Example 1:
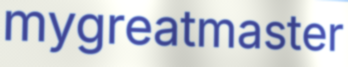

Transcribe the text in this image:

mygreatmaster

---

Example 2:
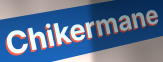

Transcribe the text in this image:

Chikermane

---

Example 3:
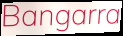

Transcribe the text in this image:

Bangarra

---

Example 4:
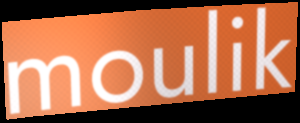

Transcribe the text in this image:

moulik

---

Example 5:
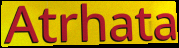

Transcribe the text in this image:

Atrhata